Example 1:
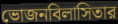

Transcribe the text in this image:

ভোজনবিলাসিতার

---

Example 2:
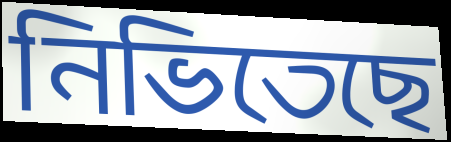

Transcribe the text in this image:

নিভিতেছে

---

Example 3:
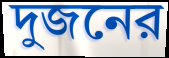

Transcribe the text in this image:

দুজনের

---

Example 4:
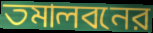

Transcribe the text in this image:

তমালবনের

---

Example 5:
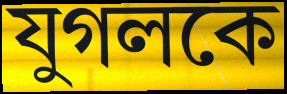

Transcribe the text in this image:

যুগলকে